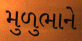
મુળુભાને